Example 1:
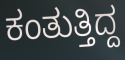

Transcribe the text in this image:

ಕಂತುತ್ತಿದ್ದ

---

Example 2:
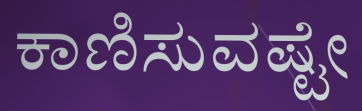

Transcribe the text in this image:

ಕಾಣಿಸುವಷ್ಟೇ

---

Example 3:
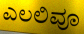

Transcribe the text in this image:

ಎಲಲಿವೂ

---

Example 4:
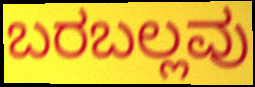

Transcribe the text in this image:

ಬರಬಲ್ಲವು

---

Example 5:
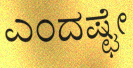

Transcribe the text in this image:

ಎಂದಷ್ಟೇ